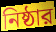
নিষ্ঠার